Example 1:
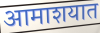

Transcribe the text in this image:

आमाशयात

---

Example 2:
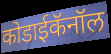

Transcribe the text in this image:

कोडाईकॅनॉल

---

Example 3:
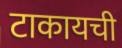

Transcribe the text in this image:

टाकायची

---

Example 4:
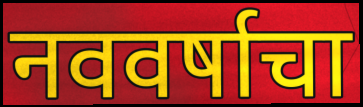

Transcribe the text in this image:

नववर्षाचा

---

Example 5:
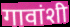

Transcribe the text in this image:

गावांशी